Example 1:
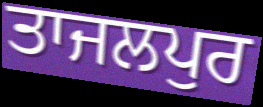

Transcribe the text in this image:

ਤਾਜਲਪੁਰ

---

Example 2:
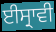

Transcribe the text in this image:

ਈਸ੍ਰਾਵੀ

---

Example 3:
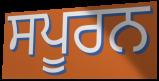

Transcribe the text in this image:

ਸਪੂਰਨ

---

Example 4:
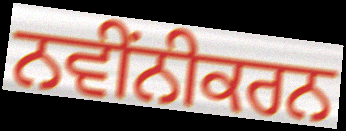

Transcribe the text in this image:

ਨਵੀਂਨੀਕਰਨ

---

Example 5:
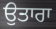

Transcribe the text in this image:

ਉਤਾਰਾ